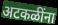
अटकळींना